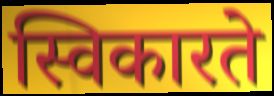
स्विकारते